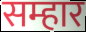
सम्हार